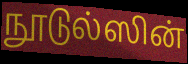
நூடுல்ஸின்